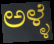
ಅಳ್ಳೆ